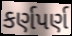
કર્ણપર્ણ